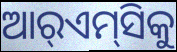
ଆର୍‌ଏମ୍‌ସିକୁ